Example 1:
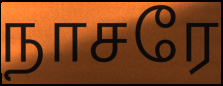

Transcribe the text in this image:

நாசரே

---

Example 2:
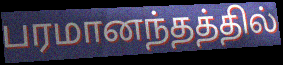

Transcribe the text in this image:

பரமானந்தத்தில்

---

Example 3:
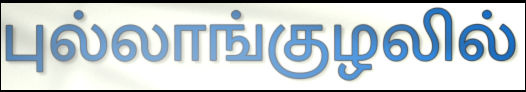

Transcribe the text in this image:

புல்லாங்குழலில்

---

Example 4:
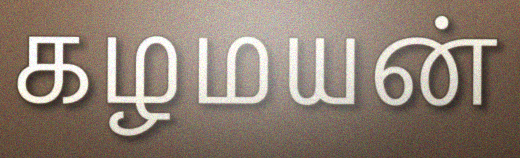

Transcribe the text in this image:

கழமயன்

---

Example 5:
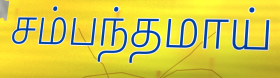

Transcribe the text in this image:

சம்பந்தமாய்